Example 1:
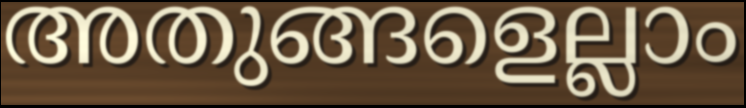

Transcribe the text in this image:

അതുങ്ങളെല്ലാം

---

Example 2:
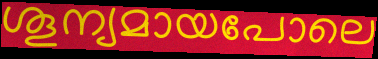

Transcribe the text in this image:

ശൂന്യമായപോലെ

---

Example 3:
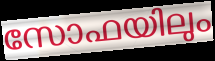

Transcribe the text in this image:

സോഫയിലും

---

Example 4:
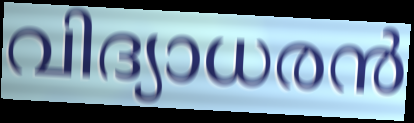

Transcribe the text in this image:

വിദ്യാധരൻ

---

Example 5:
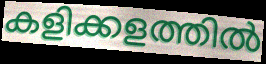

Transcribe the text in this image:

കളിക്കളത്തിൽ